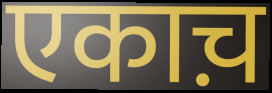
एकाच़